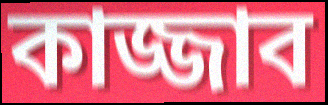
কাজ্জাব